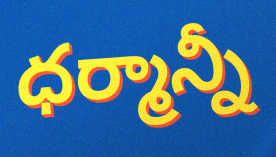
ధర్మాన్నీ